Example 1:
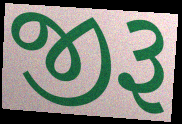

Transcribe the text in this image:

જીરૂ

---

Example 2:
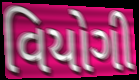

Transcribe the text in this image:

વિયોગી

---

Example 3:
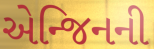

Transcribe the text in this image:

એન્જિનની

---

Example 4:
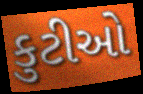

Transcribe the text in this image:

કુટીઓ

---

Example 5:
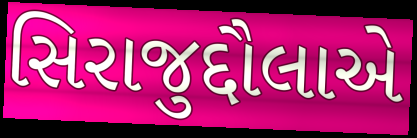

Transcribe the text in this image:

સિરાજુદ્દૌલાએ